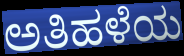
ಅತಿಹಳೆಯ